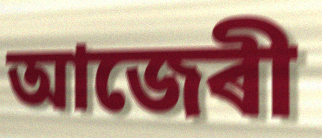
আজেৰী